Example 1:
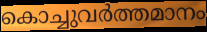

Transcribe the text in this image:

കൊച്ചുവർത്തമാനം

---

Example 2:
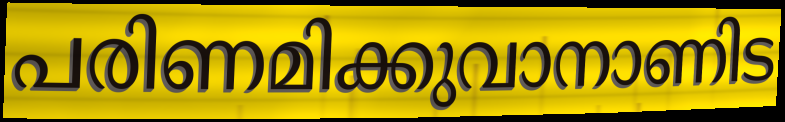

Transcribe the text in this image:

പരിണമിക്കുവാനാണിട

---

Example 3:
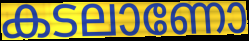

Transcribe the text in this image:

കടലാണോ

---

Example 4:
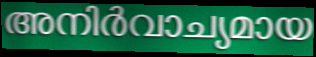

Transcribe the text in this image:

അനിർവാച്യമായ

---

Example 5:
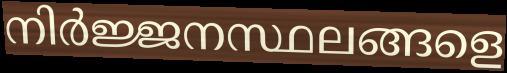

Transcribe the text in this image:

നിർജ്ജനസ്ഥലങ്ങളെ